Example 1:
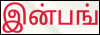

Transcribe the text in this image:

இன்பங்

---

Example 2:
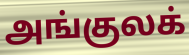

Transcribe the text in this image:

அங்குலக்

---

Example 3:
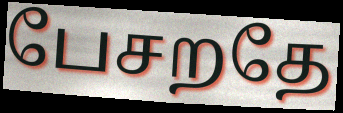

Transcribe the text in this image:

பேசறதே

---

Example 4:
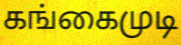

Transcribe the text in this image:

கங்கைமுடி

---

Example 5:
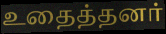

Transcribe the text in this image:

உதைத்தனர்